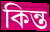
কিন্ত